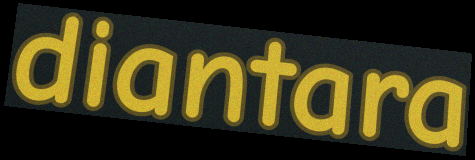
diantara